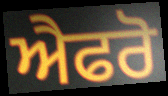
ਐਫਰੋ